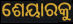
ଶେୟାରକୁ